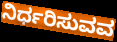
ನಿರ್ಧರಿಸುವವ